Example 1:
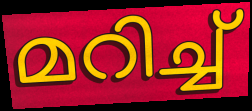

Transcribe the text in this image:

മറിച്ച്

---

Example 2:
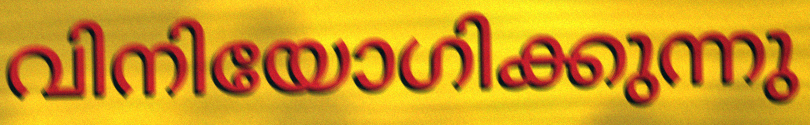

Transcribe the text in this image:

വിനിയോഗിക്കുന്നു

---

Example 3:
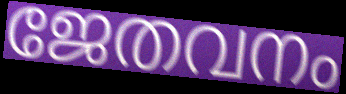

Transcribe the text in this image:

ജേതവനം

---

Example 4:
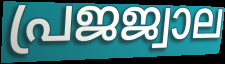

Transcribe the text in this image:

പ്രജജ്വാല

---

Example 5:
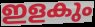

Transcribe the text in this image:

ഇളകും